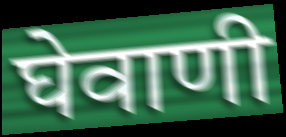
घेवाणी